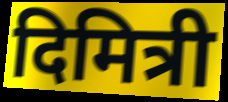
दिमित्री